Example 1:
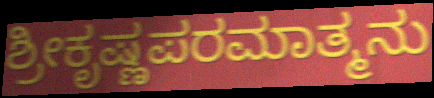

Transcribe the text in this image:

ಶ್ರೀಕೃಷ್ಣಪರಮಾತ್ಮನು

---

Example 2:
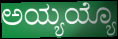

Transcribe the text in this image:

ಅಯ್ಯಯ್ಯೊ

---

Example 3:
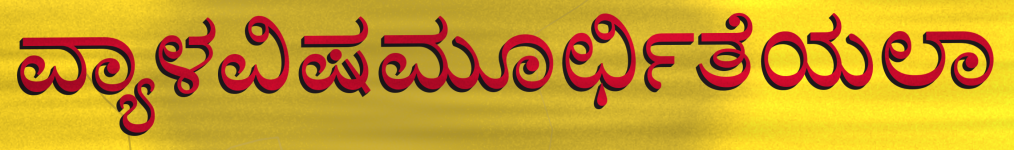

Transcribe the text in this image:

ವ್ಯಾಳವಿಷಮೂರ್ಛಿತೆಯಲಾ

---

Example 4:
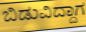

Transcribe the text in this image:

ಬಿಡುವಿದ್ದಾಗ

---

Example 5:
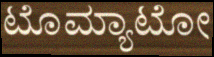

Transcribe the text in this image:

ಟೊಮ್ಯಾಟೋ